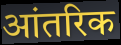
आंतरिक